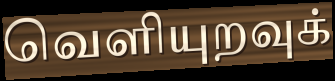
வெளியுறவுக்